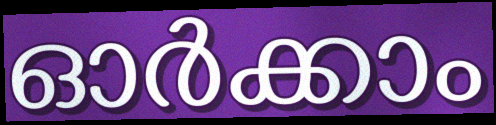
ഓർക്കാം